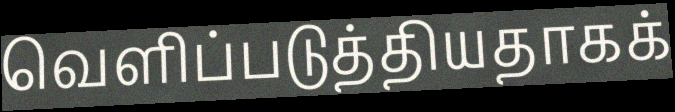
வெளிப்படுத்தியதாகக்